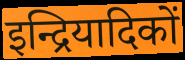
इन्द्रियादिकों